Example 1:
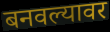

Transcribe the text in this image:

बनवल्यावर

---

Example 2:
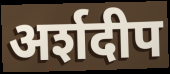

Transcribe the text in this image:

अर्शदीप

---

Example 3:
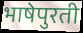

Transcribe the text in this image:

भाषेपुरती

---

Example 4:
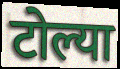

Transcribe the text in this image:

टोल्या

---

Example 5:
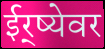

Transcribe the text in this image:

ईर्ष्येवर